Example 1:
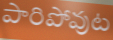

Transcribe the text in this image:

పారిపోవుట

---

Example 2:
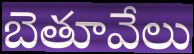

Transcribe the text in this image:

బెతూవేలు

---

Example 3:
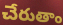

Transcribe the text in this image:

చేరుతాం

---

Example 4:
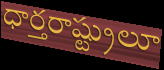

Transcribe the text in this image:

ధార్తరాష్ట్రులూ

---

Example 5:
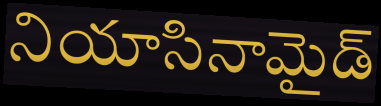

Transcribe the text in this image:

నియాసినామైడ్